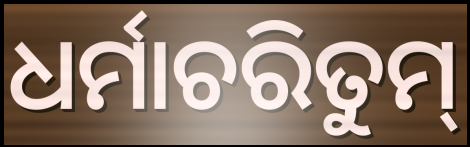
ଧର୍ମାଚରିତୁମ୍